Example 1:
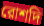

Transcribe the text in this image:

রোশদি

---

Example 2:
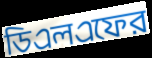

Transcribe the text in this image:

ডিএলএফের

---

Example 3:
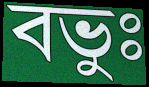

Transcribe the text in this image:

বভুঃ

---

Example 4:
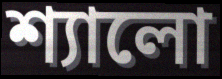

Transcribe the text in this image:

শ্যালো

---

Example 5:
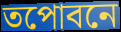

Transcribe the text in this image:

তপোবনে